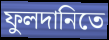
ফুলদানিতে